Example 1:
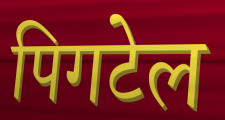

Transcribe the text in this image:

पिगटेल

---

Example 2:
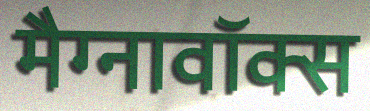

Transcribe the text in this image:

मैग्नावॉक्स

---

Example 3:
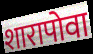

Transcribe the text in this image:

शारापोवा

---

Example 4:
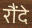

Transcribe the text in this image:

रौंदे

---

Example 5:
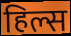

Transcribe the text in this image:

हिल्स